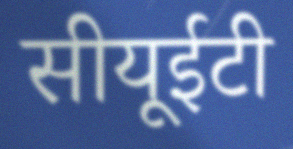
सीयूईटी